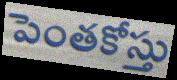
పెంతకోస్తు